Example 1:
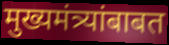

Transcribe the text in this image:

मुख्यमंत्र्यांबाबत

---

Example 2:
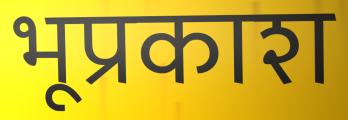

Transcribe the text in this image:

भूप्रकाश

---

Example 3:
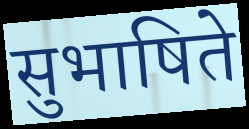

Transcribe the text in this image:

सुभाषिते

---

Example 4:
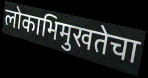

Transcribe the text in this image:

लोकाभिमुखतेचा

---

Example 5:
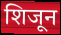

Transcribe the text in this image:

शिजून